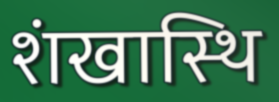
शंखास्थि